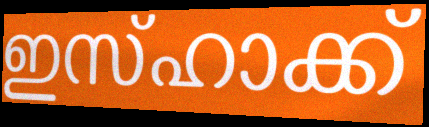
ഇസ്ഹാക്ക്